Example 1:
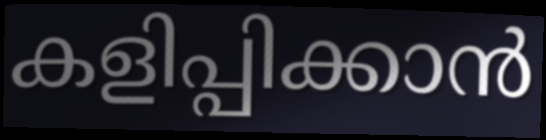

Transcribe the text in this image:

കളിപ്പിക്കാൻ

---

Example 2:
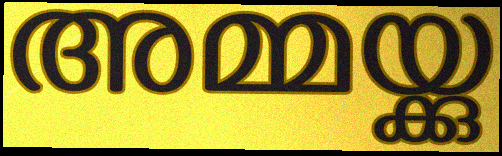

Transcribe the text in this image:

അമ്മയ്ക്കു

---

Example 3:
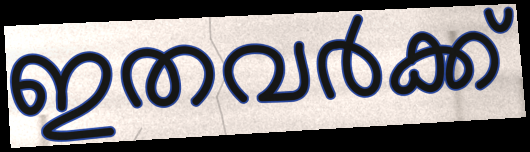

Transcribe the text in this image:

ഇതവർക്ക്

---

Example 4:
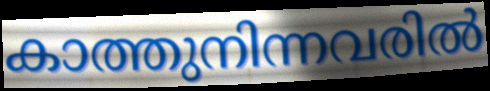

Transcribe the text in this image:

കാത്തുനിന്നവരിൽ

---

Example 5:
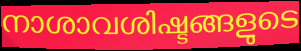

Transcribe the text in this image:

നാശാവശിഷ്ടങ്ങളുടെ